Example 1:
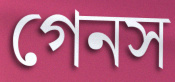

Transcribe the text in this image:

গেনস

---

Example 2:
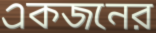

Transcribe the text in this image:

একজনের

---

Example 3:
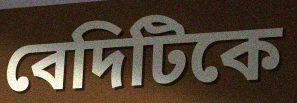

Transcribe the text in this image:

বেদিটিকে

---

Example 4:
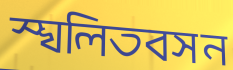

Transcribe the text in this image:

স্খলিতবসন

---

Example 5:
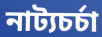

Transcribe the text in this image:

নাট্যচর্চা